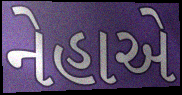
નેહાએ